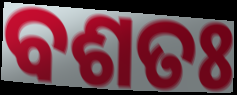
ବଶତଃ